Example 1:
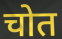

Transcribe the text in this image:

चोत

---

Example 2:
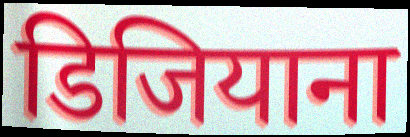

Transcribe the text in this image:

डिजियाना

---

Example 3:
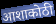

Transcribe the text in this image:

आशाकोठी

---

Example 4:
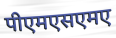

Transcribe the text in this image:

पीएमएसएमए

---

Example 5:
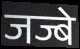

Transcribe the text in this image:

जज्बे